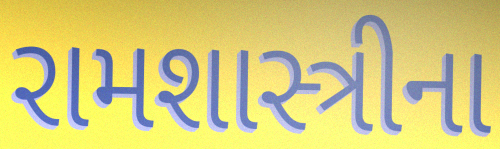
રામશાસ્ત્રીના